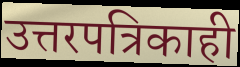
उत्तरपत्रिकाही